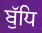
ਬੁੱਧਿ